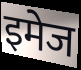
इमेज